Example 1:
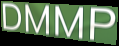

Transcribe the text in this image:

DMMP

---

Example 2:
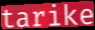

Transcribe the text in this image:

tarike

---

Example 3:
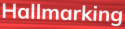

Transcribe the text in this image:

Hallmarking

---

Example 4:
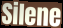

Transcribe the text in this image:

Silene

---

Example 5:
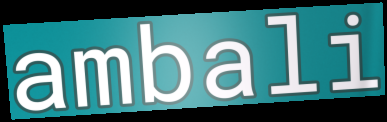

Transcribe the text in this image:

ambali